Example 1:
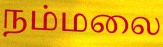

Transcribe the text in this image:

நம்மலை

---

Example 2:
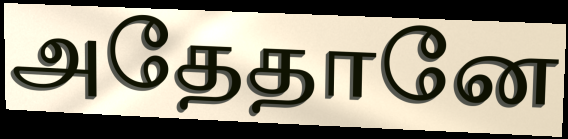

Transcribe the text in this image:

அதேதானே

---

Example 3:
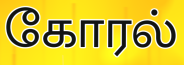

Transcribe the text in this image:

கோரல்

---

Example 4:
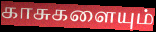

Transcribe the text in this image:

காசுகளையும்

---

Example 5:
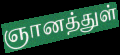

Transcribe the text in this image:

ஞானத்துள்